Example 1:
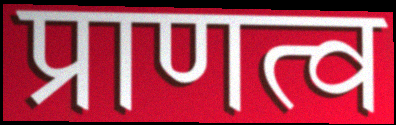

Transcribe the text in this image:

प्राणत्व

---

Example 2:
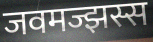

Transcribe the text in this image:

जवमज्झस्स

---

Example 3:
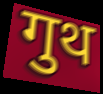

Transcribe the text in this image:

गुथ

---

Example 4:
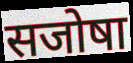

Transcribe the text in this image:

सजोषा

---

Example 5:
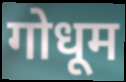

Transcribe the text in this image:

गोधूम